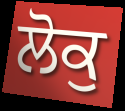
ਲੋਕੁ